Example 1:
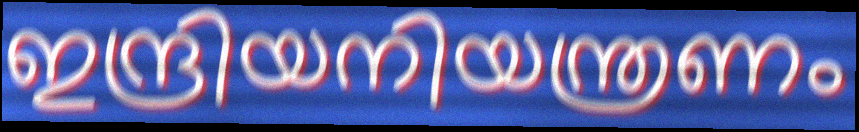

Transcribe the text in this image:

ഇന്ദ്രിയനിയന്ത്രണം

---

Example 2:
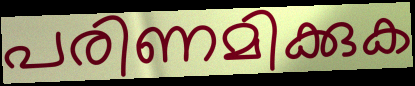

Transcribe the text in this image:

പരിണമിക്കുക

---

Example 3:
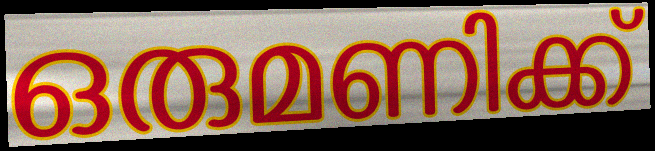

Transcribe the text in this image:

ഒരുമണിക്ക്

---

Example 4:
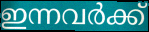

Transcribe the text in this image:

ഇന്നവർക്ക്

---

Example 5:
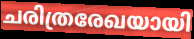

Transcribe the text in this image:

ചരിത്രരേഖയായി